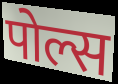
पोल्‍स